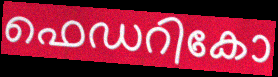
ഫെഡറികോ